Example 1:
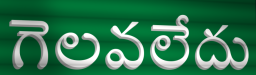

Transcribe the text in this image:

గెలవలేదు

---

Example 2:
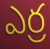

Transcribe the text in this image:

ఎర్ర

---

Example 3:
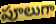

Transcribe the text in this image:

పూలుగా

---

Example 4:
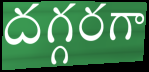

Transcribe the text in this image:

దగ్గరగా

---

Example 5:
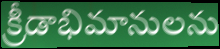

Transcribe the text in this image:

క్రీడాభిమానులను